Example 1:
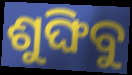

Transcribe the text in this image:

ଶୁଙ୍ଘିବୁ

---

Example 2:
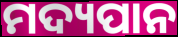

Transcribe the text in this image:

ମଦ୍ୟପାନ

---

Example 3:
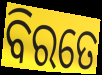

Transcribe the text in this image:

ବିରତେ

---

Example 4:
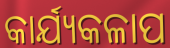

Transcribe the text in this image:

କାର୍ଯ୍ୟକଳାପ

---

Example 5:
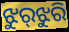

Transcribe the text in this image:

ଝୁର୍‌ଝୁରି